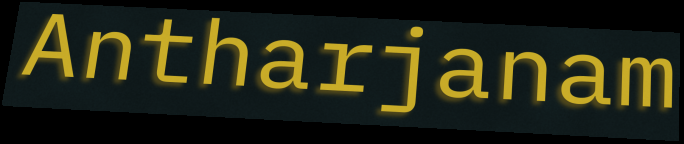
Antharjanam